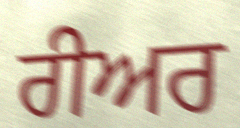
ਰੀਅਰ